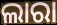
ଲାରା